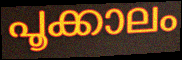
പൂക്കാലം